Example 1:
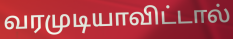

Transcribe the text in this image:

வரமுடியாவிட்டால்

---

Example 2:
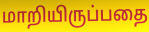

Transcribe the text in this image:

மாறியிருப்பதை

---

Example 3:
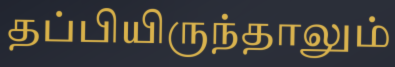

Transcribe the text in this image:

தப்பியிருந்தாலும்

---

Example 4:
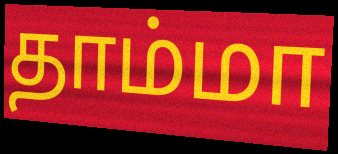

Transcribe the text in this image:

தாம்மா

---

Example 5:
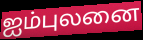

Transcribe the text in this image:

ஐம்புலனை